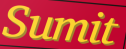
Sumit